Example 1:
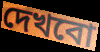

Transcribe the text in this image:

দেখবো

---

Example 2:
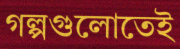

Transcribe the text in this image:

গল্পগুলোতেই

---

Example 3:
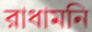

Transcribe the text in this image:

রাধামনি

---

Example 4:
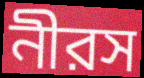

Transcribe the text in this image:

নীরস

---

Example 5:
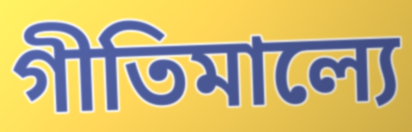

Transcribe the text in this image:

গীতিমাল্যে